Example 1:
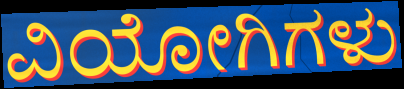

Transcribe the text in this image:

ವಿಯೋಗಿಗಳು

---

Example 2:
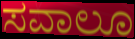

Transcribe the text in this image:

ಸವಾಲೂ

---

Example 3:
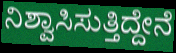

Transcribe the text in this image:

ನಿಶ್ವಾಸಿಸುತ್ತಿದ್ದೇನೆ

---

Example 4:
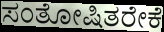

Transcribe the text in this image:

ಸಂತೋಷಿತರೇಕೆ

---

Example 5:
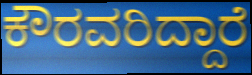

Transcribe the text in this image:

ಕೌರವರಿದ್ದಾರೆ